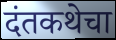
दंतकथेचा